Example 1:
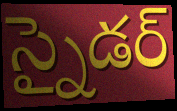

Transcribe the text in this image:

స్నైడర్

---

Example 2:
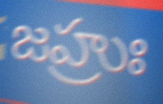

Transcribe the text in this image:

జహ్రుః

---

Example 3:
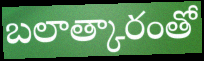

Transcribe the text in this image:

బలాత్కారంతో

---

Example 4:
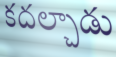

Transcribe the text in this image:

కదల్చాడు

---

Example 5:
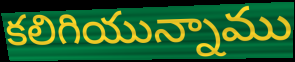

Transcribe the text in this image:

కలిగియున్నాము